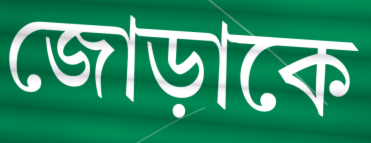
জোড়াকে